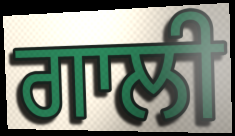
ਗਾਲੀ